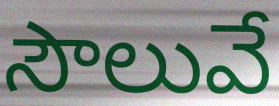
సౌలువే